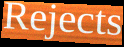
Rejects